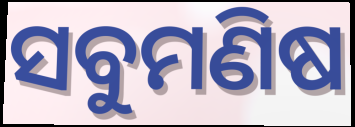
ସବୁମଣିଷ